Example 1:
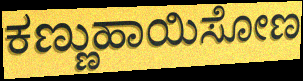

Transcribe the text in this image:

ಕಣ್ಣುಹಾಯಿಸೋಣ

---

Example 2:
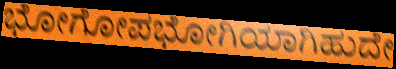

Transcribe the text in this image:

ಭೋಗೋಪಭೋಗಿಯಾಗಿಹುದೇ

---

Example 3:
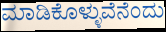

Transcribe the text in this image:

ಮಾಡಿಕೊಳ್ಳುವೆನೆಂದು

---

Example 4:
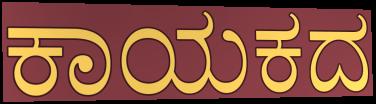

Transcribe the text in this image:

ಕಾಯಕದ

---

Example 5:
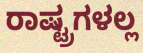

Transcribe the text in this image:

ರಾಷ್ಟ್ರಗಳಲ್ಲ